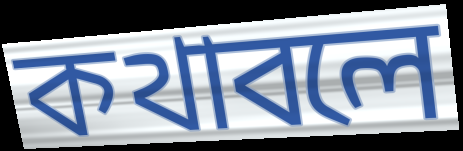
কথাবলে